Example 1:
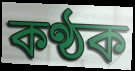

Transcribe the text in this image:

কণ্ঠক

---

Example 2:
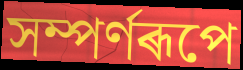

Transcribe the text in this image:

সম্পৰ্ণৰূপে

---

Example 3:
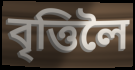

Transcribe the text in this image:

বৃত্তিলৈ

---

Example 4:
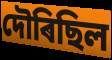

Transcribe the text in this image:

দৌৰিছিল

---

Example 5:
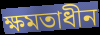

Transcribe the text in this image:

ক্ষমতাধীন